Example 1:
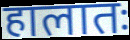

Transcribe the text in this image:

हालातः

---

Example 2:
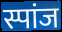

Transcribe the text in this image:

स्पांज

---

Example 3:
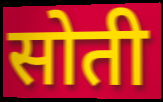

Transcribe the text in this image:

सोती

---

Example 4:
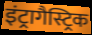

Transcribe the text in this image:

इंट्रागैस्ट्रिक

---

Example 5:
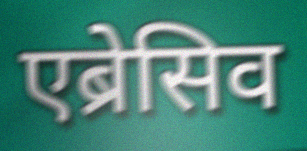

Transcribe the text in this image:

एब्रेसिव